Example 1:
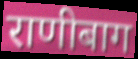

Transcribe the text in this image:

राणीबाग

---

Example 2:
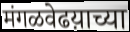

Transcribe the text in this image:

मंगळवेढय़ाच्या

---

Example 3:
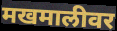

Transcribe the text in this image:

मखमालीवर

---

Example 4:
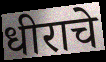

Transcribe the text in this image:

धीराचे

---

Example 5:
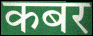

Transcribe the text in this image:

कबर